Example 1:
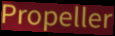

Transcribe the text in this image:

Propeller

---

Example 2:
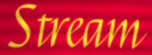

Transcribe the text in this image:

Stream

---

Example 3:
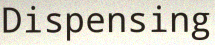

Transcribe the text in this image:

Dispensing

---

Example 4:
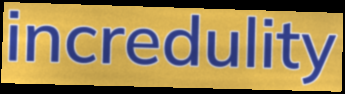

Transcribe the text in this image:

incredulity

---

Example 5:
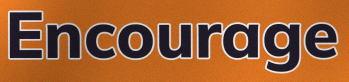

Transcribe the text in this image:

Encourage